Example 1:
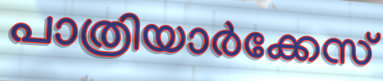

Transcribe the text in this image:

പാത്രിയാർക്കേസ്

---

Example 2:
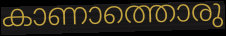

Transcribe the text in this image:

കാണാത്തൊരു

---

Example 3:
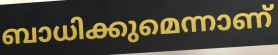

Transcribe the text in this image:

ബാധിക്കുമെന്നാണ്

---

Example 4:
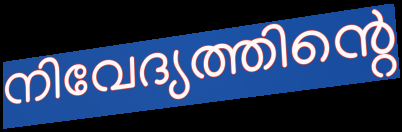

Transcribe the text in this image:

നിവേദ്യത്തിന്റെ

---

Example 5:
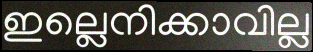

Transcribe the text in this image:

ഇല്ലെനിക്കാവില്ല